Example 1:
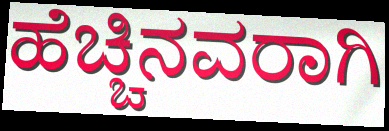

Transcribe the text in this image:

ಹೆಚ್ಚಿನವರಾಗಿ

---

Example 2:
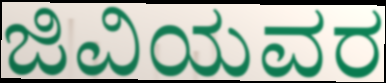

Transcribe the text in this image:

ಜಿವಿಯವರ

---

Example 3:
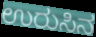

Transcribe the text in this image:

ಉರುಸಿನ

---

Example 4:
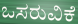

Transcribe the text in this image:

ಒಸರುವಿಕೆ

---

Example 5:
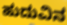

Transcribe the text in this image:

ಹುದುವಿನ